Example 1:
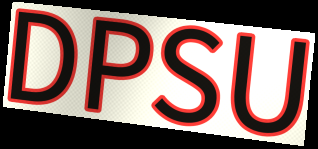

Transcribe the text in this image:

DPSU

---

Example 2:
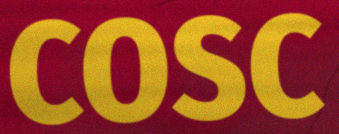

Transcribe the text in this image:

COSC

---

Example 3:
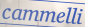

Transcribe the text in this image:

cammelli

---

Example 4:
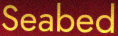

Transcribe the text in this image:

Seabed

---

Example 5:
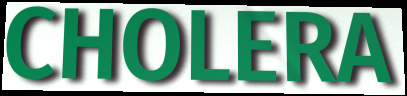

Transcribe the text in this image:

CHOLERA